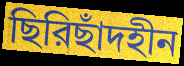
ছিরিছাঁদহীন